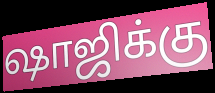
ஷாஜிக்கு